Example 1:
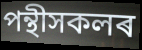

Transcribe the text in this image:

পন্থীসকলৰ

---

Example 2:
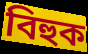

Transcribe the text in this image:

বিহুক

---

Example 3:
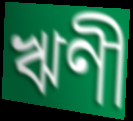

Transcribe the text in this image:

ঋণী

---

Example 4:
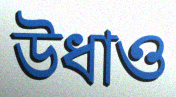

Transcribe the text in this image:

উধাও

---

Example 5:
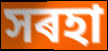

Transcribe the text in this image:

সৰহা